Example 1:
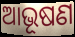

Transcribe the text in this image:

ଆଭୂଷଣ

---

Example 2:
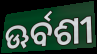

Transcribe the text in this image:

ଊର୍ବଶୀ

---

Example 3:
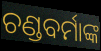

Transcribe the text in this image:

ଚଣ୍ଡବର୍ମାଙ୍କ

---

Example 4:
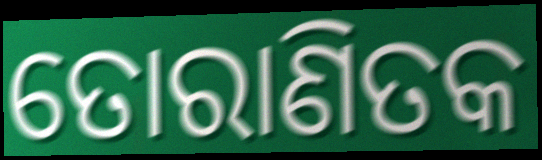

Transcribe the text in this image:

ତୋରାଣିତକ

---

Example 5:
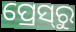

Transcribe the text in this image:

ପ୍ରେସ୍‍ରୁ